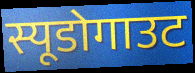
स्यूडोगाउट